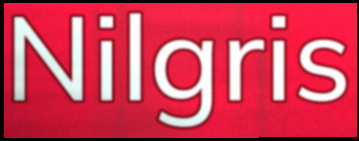
Nilgris